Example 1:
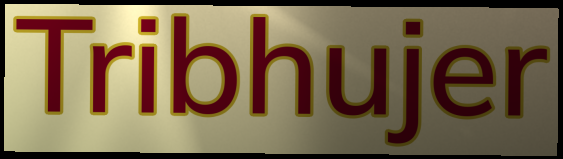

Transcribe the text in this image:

Tribhujer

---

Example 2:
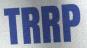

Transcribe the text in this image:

TRRP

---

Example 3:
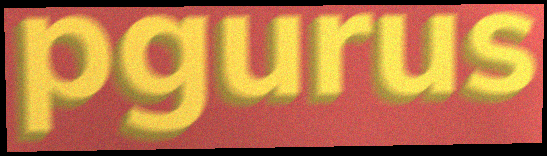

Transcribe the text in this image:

pgurus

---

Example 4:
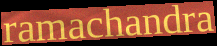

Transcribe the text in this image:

ramachandra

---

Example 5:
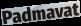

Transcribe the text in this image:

Padmavat